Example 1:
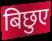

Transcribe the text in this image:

बिछुए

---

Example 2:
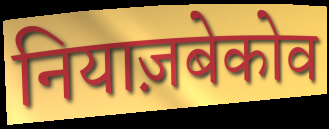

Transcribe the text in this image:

नियाज़बेकोव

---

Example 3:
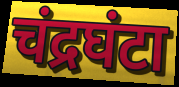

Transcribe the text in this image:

चंद्रघंटा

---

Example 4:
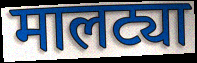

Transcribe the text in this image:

मालट्या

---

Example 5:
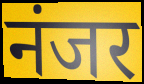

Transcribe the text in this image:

नंजर